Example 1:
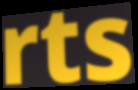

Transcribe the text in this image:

rts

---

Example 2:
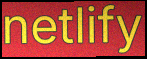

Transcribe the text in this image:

netlify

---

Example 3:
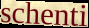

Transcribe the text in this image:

schenti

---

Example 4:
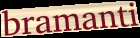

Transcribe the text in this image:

bramanti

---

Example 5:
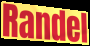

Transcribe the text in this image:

Randel